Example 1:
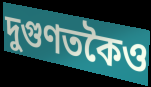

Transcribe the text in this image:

দুগুণতকৈও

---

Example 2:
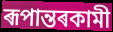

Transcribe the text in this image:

ৰূপান্তৰকামী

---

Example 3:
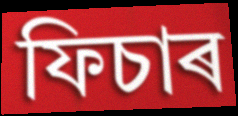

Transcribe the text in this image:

ফিচাৰ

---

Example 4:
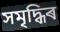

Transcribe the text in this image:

সমৃদ্ধিৰ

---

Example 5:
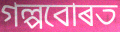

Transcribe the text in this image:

গল্পবোৰত